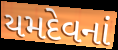
યમદેવનાં